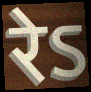
रेऽ